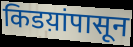
किडय़ांपासून